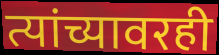
त्यांच्यावरही